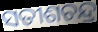
ସତୀଶଚନ୍ଦ୍ର